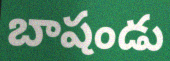
బాషండు